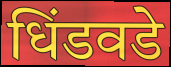
धिंडवडे